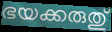
ഭയക്കരുതു്